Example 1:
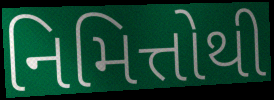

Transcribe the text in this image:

નિમિત્તોથી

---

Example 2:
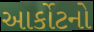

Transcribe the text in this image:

આર્કોટનો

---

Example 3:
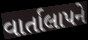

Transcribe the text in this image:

વાર્તાલાપને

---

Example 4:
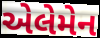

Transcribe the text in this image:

એલેમેન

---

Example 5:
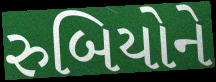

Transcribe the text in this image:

રુબિયોને